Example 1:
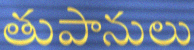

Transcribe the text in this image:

తుపానులు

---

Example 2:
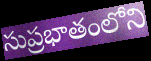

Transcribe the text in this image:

సుప్రభాతంలోని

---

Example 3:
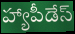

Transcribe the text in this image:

హ్యాపీడేస్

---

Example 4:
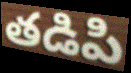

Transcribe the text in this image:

తడిపి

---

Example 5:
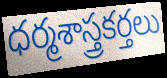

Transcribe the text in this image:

ధర్మశాస్త్రకర్తలు